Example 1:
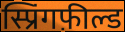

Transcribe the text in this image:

स्प्रिंगफ़ील्ड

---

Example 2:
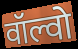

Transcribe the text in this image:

वॉल्वो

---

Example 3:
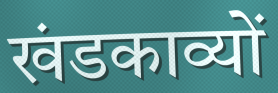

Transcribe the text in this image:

खंडकाव्यों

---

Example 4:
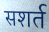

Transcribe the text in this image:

सशर्त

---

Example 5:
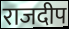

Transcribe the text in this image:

राजदीप